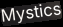
Mystics